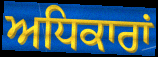
ਅਧਿਕਾਰਾਂ